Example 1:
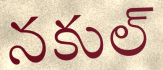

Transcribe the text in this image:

నకుల్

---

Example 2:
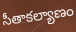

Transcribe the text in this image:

సీతాకల్యాణం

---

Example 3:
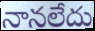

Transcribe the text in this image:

నానలేదు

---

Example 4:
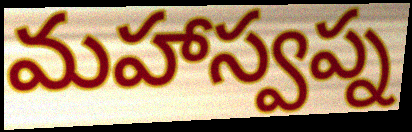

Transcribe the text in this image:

మహాస్వప్న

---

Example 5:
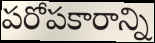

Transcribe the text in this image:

పరోపకారాన్ని